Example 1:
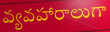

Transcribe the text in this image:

వ్యవహారాలుగా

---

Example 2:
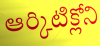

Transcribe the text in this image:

ఆర్కిటిక్లోని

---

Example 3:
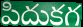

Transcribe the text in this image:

పిదుకగ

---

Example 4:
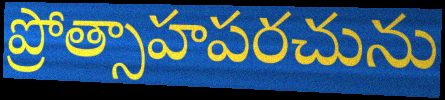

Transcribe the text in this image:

ప్రోత్సాహపరచును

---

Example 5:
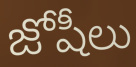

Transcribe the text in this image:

జోషీలు